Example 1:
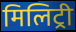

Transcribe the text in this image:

मिलिट्री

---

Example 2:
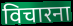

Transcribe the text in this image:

विचारना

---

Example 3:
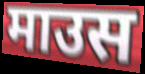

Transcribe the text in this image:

माउस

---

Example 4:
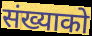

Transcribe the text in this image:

संख्याको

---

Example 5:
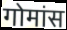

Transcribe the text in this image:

गोमांस